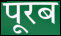
पूरब